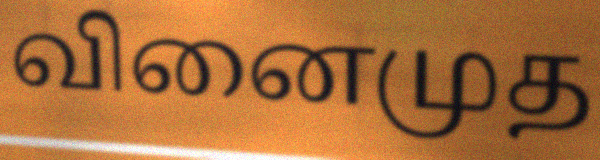
வினைமுத